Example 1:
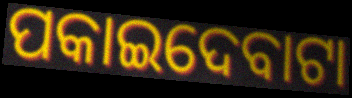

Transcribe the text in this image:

ପକାଇଦେବାଟା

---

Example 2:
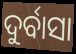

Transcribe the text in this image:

ଦୁର୍ବାସା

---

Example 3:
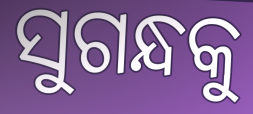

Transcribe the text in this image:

ସୁଗନ୍ଧକୁ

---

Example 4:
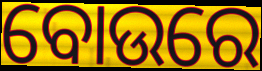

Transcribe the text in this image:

ବୋଉରେ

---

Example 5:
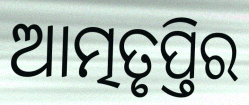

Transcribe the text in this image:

ଆତ୍ମତୃପ୍ତିର